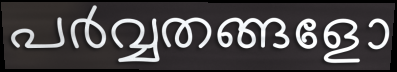
പർവ്വതങ്ങളോ